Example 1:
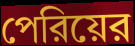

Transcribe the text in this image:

পেরিয়ের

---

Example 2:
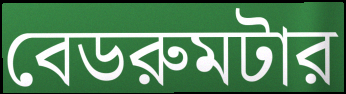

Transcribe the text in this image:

বেডরুমটার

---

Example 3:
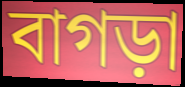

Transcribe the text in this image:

বাগড়া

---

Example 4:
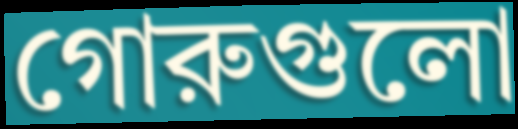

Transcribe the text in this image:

গোরুগুলো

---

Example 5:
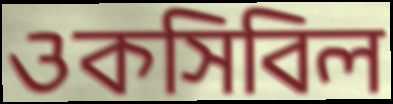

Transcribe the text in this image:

ওকসিবিল